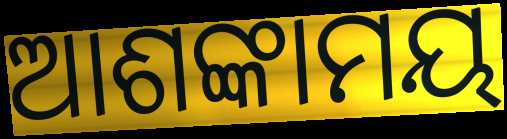
ଆଶଙ୍କାମୟ